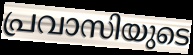
പ്രവാസിയുടെ